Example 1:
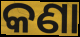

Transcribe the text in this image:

କଣା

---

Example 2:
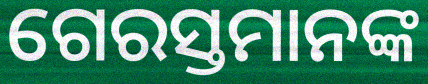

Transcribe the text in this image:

ଗେରସ୍ତମାନଙ୍କ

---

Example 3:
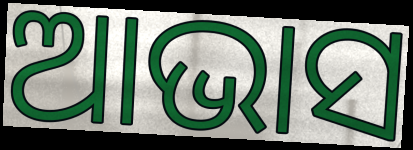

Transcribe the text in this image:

ଆଭାସ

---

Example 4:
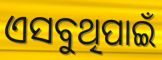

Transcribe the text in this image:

ଏସବୁଥିପାଇଁ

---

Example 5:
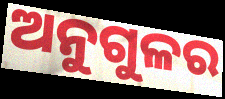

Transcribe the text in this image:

ଅନୁଗୁଳର